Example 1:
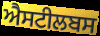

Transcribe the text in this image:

ਐਸਟੀਲਬਸ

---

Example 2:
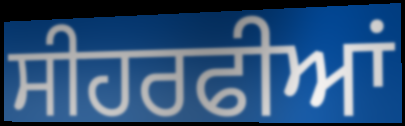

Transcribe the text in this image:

ਸੀਹਰਫੀਆਂ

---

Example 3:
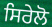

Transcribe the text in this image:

ਸਿਰੇਲੋ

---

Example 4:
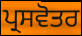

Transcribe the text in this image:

ਪ੍ਰਸਵੋਤਰ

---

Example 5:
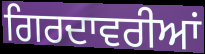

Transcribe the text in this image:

ਗਿਰਦਾਵਰੀਆਂ